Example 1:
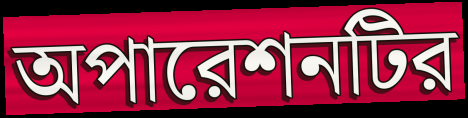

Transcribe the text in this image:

অপারেশনটির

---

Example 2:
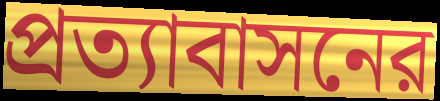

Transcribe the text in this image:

প্রত্যাবাসনের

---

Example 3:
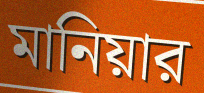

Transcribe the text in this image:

মানিয়ার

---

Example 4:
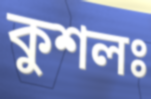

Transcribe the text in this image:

কুশলঃ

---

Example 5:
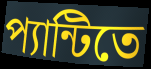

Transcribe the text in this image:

প্যান্টিতে